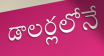
డాలర్లలోనే